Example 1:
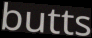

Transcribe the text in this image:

butts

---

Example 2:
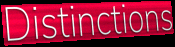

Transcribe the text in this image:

Distinctions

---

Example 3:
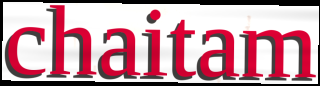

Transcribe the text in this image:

chaitam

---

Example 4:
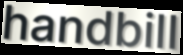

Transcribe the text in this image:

handbill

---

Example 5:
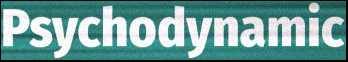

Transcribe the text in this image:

Psychodynamic